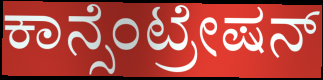
ಕಾನ್ಸೆಂಟ್ರೇಷನ್